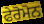
ਫੇਰੋਮੋਨ